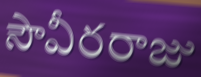
సౌవీరరాజు